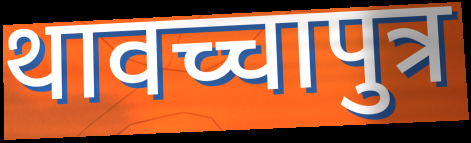
थावच्चापुत्र